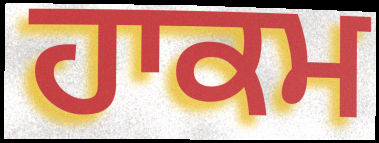
ਹਾਕਮ